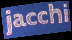
jacchi